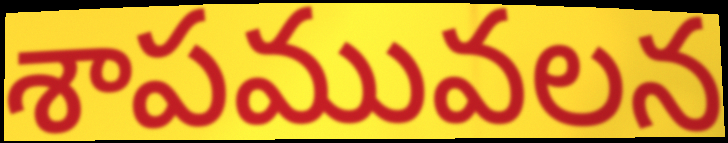
శాపమువలన